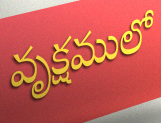
వృక్షములో